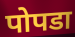
पोपडा